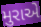
મુરાએ